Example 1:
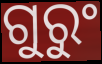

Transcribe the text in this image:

ଗୁରୁଂ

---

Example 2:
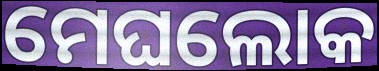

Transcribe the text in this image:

ମେଘଲୋକ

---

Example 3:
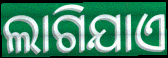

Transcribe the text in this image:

ଲାଗିଯାଏ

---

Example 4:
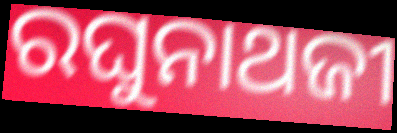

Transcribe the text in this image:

ରଘୁନାଥଜୀ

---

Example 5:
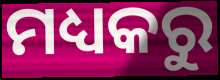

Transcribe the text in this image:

ମଧ୍ୟକରୁ